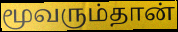
மூவரும்தான்